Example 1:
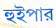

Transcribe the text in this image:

হুইপার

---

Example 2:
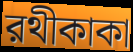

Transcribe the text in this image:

রথীকাকা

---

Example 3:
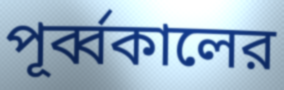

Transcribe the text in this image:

পূর্ব্বকালের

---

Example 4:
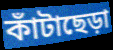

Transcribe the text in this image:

কাঁটাছেড়া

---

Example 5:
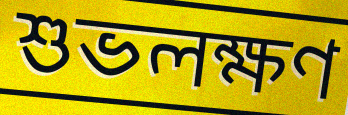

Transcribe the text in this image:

শুভলক্ষণ